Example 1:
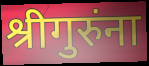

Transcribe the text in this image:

श्रीगुरुंना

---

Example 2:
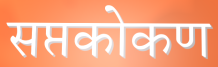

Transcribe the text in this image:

सप्तकोकण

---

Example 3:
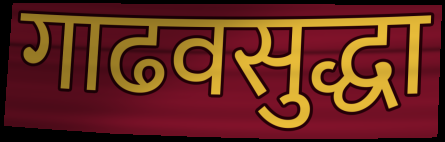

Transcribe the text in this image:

गाढवसुद्धा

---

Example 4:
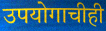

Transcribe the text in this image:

उपयोगाचीही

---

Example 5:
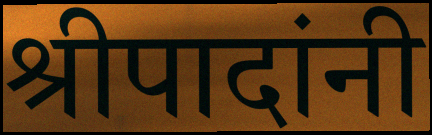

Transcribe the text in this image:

श्रीपादांनी